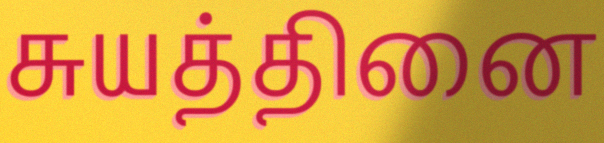
சுயத்தினை